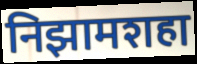
निझामशहा